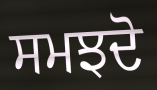
ਸਮਝਦੋ